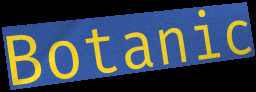
Botanic